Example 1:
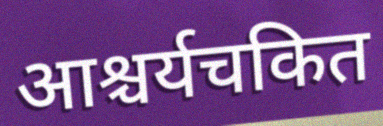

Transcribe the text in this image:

आश्चर्यचकित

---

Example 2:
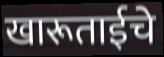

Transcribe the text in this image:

खारूताईचे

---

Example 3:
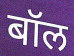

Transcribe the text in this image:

बॉल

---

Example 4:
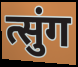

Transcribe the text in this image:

त्सुंग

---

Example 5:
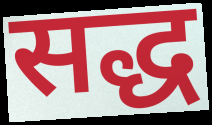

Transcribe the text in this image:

सद्ध